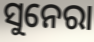
ସୁନେରା